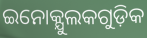
ଇନୋକ୍ଯୁଲକଗୁଡ଼ିକ